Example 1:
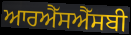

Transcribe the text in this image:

ਆਰਐੱਸਐੱਸਬੀ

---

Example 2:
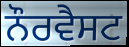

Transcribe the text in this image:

ਨੌਰਵੈਸਟ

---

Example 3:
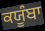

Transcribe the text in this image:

ਕਯੂੰਬਾ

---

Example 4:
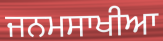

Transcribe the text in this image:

ਜਨਮਸਾਖੀਆ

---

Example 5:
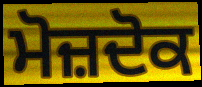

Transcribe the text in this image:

ਮੋਜ਼ਦੋਕ